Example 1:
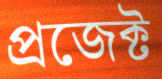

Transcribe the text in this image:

প্ৰজেক্ট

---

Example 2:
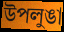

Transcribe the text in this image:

উপলুঙা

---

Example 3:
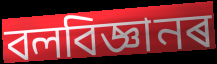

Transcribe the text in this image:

বলবিজ্ঞানৰ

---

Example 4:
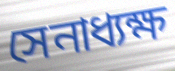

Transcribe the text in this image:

সেনাধ্যক্ষ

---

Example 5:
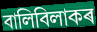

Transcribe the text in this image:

বালিবিলাকৰ